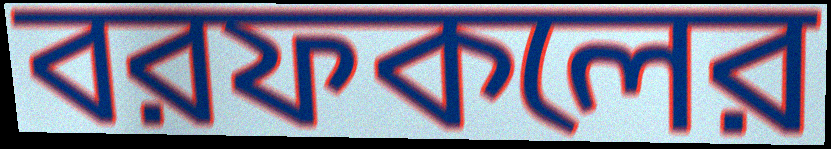
বরফকলের